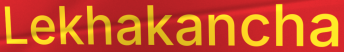
Lekhakancha